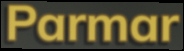
Parmar